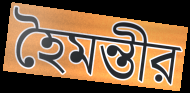
হৈমন্তীর